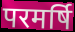
परमर्षि